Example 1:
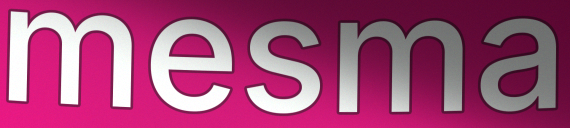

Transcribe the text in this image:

mesma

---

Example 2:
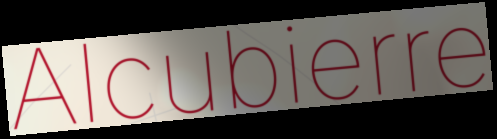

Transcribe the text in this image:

Alcubierre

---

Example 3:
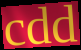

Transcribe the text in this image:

cdd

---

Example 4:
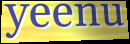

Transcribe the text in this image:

yeenu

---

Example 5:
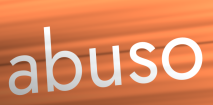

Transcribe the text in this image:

abuso